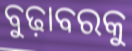
ବୁଢ଼ାବରକୁ